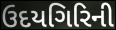
ઉદયગિરિની